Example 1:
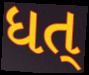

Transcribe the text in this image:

ધત્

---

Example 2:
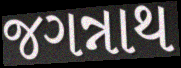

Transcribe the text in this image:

જગન્નાથ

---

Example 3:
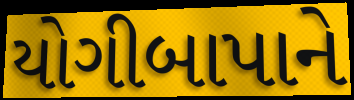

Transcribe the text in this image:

યોગીબાપાને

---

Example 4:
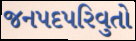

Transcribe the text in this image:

જનપદપરિવુતો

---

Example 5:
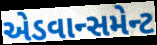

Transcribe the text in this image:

એડવાન્સમેન્ટ